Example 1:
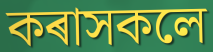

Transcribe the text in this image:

কৰাসকলে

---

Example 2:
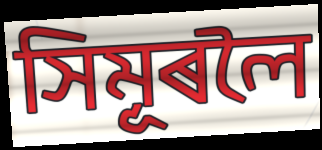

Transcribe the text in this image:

সিমূৰলৈ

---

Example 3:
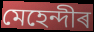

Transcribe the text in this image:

মেহেন্দীৰ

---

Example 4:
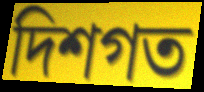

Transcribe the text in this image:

দিশগত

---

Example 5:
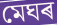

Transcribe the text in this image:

মেঘৰ